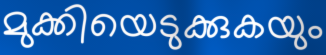
മുക്കിയെടുക്കുകയും